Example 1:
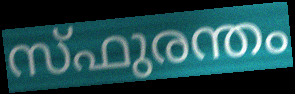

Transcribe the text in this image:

സ്ഫുരന്തം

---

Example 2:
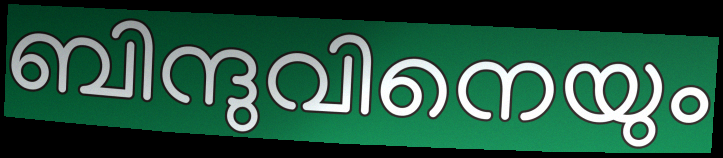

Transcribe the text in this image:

ബിന്ദുവിനെയും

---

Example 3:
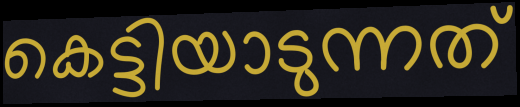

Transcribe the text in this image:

കെട്ടിയാടുന്നത്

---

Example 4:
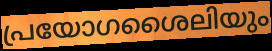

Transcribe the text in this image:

പ്രയോഗശൈലിയും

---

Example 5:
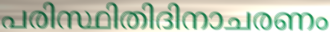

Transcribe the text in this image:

പരിസ്ഥിതിദിനാചരണം